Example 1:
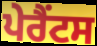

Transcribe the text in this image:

ਪੇਰੈਂਟਸ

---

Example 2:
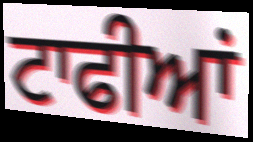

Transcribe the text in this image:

ਟਾਫੀਆਂ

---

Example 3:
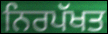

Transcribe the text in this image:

ਨਿਰਪੱਖਤ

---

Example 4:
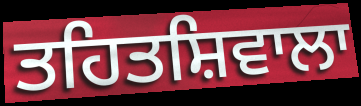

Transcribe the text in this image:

ਤਹਿਤਸ਼ਿਵਾਲਾ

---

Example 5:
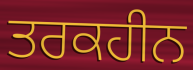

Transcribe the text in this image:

ਤਰਕਹੀਨ